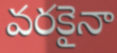
వరకైనా